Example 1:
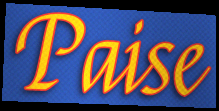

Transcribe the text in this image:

Paise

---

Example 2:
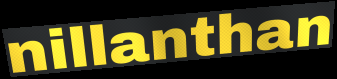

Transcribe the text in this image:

nillanthan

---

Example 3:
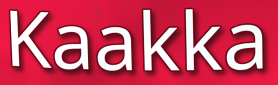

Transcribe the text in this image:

Kaakka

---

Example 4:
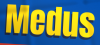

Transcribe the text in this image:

Medus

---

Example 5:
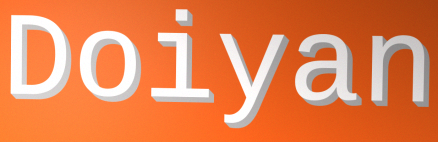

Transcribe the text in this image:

Doiyan